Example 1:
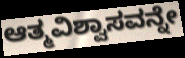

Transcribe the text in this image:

ಆತ್ಮವಿಶ್ವಾಸವನ್ನೇ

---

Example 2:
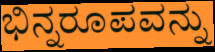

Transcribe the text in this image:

ಭಿನ್ನರೂಪವನ್ನು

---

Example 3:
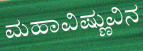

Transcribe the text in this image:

ಮಹಾವಿಷ್ಣುವಿನ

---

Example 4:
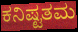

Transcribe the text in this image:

ಕನಿಷ್ಟತಮ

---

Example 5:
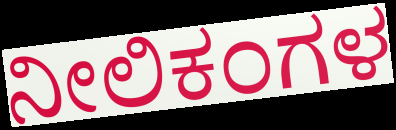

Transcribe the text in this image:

ನೀಲಿಕಂಗಳ